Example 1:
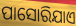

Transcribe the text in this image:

ପାସୋରିଯାଏ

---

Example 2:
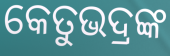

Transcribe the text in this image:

କେତୁଭଦ୍ରଙ୍କ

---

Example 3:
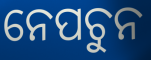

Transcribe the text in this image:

ନେପଚୁନ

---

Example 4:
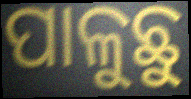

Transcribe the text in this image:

ପାଳୁଛୁ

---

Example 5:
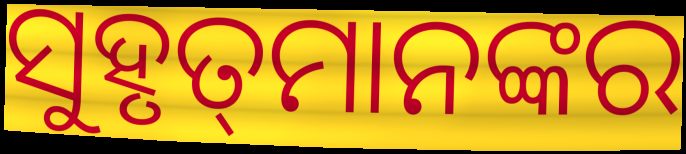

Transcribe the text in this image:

ସୁହୃତ୍‌ମାନଙ୍କର